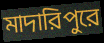
মাদারিপুরে